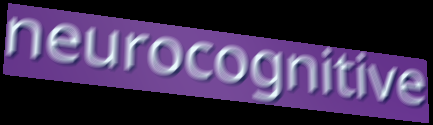
neurocognitive